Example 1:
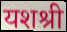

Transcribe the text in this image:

यशश्री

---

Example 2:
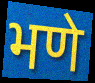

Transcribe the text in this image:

भणे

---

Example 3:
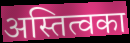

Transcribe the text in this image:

अस्तित्वका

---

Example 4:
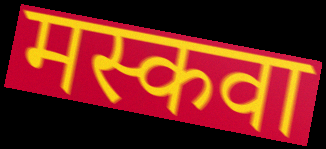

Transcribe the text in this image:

मस्कवा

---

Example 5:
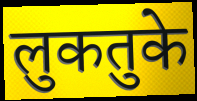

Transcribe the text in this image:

लुकतुके